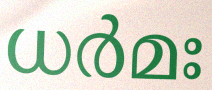
ധർമഃ